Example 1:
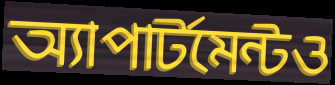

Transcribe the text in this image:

অ্যাপার্টমেন্টও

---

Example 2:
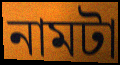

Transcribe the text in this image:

নামটা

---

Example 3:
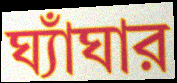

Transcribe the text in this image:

ঘ্যাঁঘার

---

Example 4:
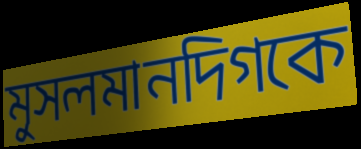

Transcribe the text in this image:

মুসলমানদিগকে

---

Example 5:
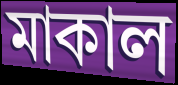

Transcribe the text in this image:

মাকাল